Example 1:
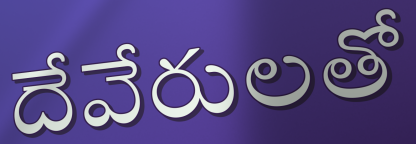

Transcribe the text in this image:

దేవేరులతో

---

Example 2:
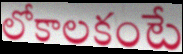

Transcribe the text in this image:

లోకాలకంటే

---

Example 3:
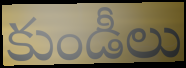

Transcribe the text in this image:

కుండీలు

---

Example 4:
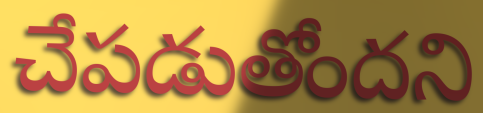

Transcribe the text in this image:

చేపడుతోందని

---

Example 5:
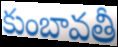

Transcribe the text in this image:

కుంబావతీ